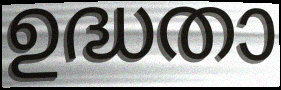
ഉദ്ധതാ